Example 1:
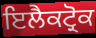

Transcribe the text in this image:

ਇਲੈਕਟ੍ਰੋਕ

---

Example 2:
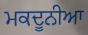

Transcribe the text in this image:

ਮਕਦੂਨੀਆ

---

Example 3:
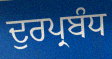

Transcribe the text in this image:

ਦੁਰਪ੍ਰਬੰਧ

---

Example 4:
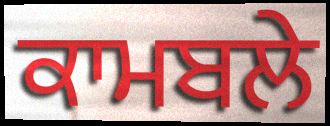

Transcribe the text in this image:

ਕਾਮਬਲੇ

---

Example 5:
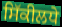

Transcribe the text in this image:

ਸਿੱਕੀਲਧੇ